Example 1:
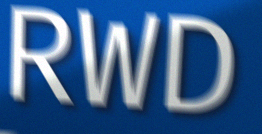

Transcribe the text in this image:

RWD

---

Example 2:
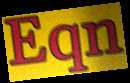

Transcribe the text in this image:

Eqn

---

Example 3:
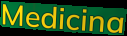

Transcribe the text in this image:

Medicina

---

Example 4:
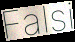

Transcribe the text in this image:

Falsi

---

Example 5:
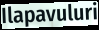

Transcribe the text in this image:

Ilapavuluri